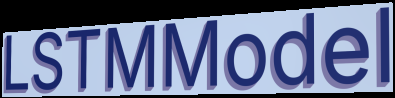
LSTMModel